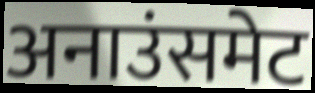
अनाउंसमेट